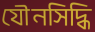
যৌনসিদ্ধি